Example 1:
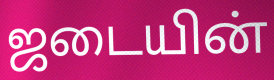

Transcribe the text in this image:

ஜடையின்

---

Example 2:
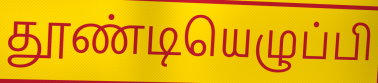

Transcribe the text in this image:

தூண்டியெழுப்பி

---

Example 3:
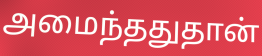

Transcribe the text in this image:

அமைந்ததுதான்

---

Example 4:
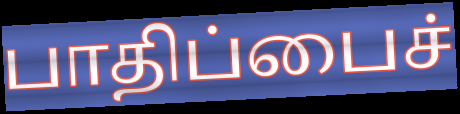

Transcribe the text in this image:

பாதிப்பைச்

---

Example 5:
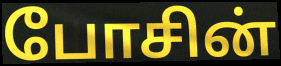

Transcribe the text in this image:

போசின்